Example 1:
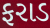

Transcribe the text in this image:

ફરાડ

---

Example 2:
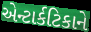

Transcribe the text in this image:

એન્ટાર્કટિકાને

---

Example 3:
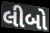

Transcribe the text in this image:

લીબો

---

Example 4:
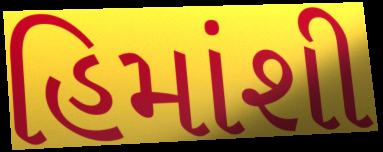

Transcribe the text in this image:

હિમાંશી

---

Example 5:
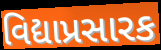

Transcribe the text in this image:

વિદ્યાપ્રસારક